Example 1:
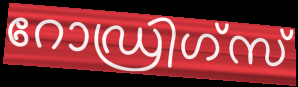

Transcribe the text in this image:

റോഡ്രിഗ്സ്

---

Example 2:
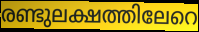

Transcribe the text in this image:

രണ്ടുലക്ഷത്തിലേറെ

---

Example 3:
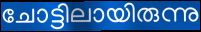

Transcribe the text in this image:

ചോട്ടിലായിരുന്നു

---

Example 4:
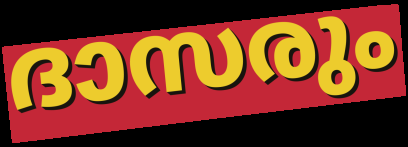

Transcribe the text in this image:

ദാസരും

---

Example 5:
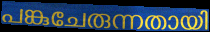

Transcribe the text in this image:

പങ്കുചേരുന്നതായി